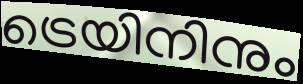
ട്രെയിനിനും